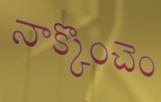
నాక్కొంచెం